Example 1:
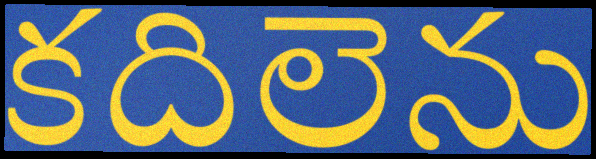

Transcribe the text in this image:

కదిలెను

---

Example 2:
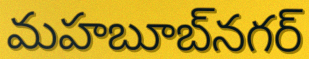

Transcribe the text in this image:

మహబూబ్‌నగర్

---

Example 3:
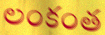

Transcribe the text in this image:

లంకంత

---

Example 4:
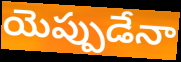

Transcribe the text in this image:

యెప్పుడేనా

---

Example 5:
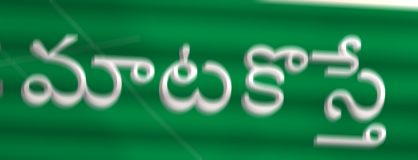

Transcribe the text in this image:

మాటకొస్తే